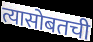
त्यासोबतची